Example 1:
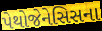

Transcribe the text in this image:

પેથોજેનેસિસના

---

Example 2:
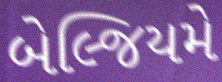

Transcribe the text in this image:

બેલ્જિયમે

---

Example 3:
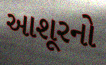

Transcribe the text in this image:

આશૂરનો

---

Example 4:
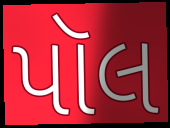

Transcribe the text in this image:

પૉલ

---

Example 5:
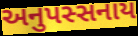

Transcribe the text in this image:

અનુપસ્સનાય